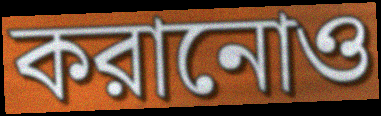
করানোও